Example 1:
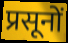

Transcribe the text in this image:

प्रसूनों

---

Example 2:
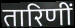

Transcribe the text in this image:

तारिणीं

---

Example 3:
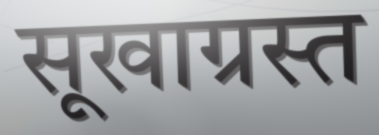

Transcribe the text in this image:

सूखाग्रस्‍त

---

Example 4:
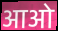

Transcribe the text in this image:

आओ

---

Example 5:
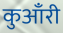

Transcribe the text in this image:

कुआँरी